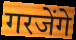
गरजेंगे